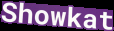
Showkat